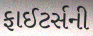
ફાઈટર્સની